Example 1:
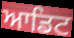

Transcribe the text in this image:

ਆਡਿਟ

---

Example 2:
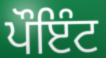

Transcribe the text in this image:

ਪੌਇੰਟ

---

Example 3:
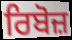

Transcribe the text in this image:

ਰਿਬੋਜ਼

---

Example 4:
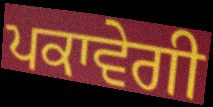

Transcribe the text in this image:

ਪਕਾਵੇਗੀ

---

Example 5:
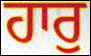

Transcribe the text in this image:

ਹਾਰੁ